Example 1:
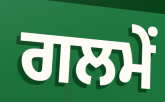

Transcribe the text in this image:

ਗਲਮੇਂ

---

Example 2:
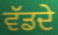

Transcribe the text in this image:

ਵੱਡਦੇ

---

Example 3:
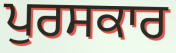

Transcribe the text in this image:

ਪੁਰਸਕਾਰ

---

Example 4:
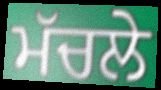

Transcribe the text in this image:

ਮੱਚਲੇ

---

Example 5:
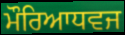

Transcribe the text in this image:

ਮੌਰਿਆਧਵਜ